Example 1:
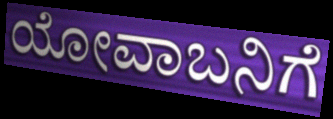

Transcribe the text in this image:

ಯೋವಾಬನಿಗೆ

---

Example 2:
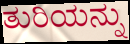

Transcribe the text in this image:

ತುರಿಯನ್ನು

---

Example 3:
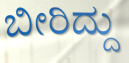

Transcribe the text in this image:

ಬೀರಿದ್ದು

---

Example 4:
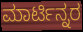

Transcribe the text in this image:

ಮಾರ್ಟಿನ್ನರ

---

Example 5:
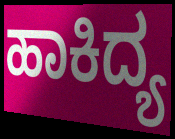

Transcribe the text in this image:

ಹಾಕಿದ್ಯ